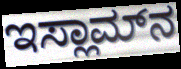
ಇಸ್ಲಾಮ್‌ನ